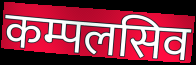
कम्पलसिव